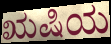
ಋಷಿಯ